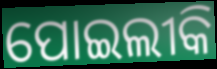
ପୋଇଲୀକି